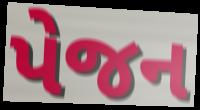
પેજન